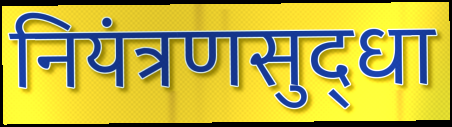
नियंत्रणसुद्धा